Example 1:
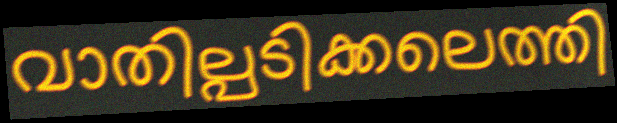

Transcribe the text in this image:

വാതില്പടിക്കലെത്തി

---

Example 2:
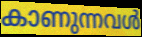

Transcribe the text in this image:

കാണുന്നവൾ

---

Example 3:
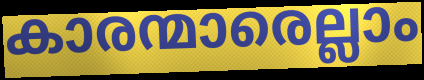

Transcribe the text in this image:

കാരന്മാരെല്ലാം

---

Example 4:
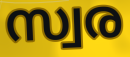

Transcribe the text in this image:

സ്വര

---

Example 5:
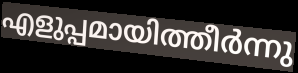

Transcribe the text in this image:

എളുപ്പമായിത്തീർന്നു